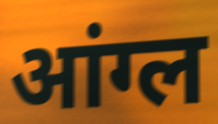
आंग्ल